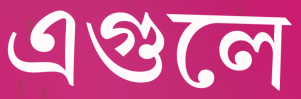
এগুলে